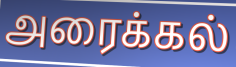
அரைக்கல்